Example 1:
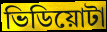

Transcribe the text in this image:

ভিডিয়োটা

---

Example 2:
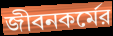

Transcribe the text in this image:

জীবনকর্মের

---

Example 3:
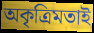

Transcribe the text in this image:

অকৃত্রিমতাই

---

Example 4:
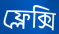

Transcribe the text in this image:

ফ্লেক্সি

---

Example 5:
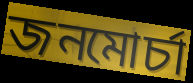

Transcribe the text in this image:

জনমোর্চা